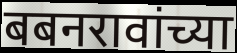
बबनरावांच्या